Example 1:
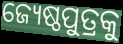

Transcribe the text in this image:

ଜ୍ୟେଷ୍ଠପୁତ୍ରକୁ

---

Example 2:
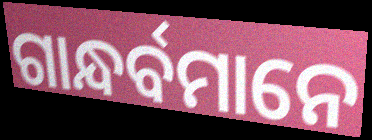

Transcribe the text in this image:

ଗାନ୍ଧର୍ବମାନେ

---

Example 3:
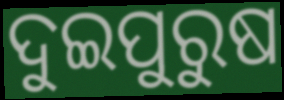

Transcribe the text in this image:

ଦୁଇପୁରୁଷ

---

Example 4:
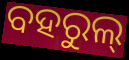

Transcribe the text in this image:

ବହରୁଲ୍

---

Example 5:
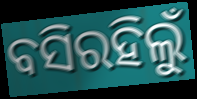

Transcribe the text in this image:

ବସିରହିଲୁଁ